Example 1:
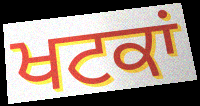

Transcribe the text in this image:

ਖਟਕਾਂ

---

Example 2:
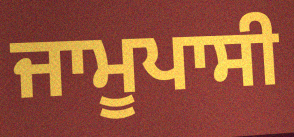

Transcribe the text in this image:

ਜਾਮੂਪਾਸੀ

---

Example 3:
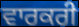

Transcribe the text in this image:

ਵਾਰਕਰੀ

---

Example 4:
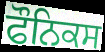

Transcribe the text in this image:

ਫੌਨਿਕਸ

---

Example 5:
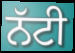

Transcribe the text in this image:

ਨੱਟੀ